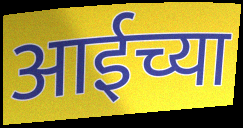
आईच्या